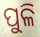
ପୁଳି